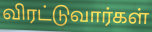
விரட்டுவார்கள்